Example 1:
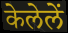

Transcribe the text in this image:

केलेलें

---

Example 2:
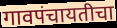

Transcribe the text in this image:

गावपंचायतीचा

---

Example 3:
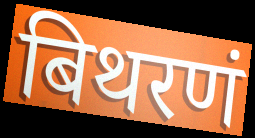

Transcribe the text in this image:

बिथरणं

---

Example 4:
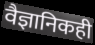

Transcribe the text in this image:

वैज्ञानिकही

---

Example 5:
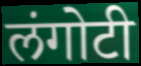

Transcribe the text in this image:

लंगोटी